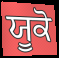
ਯੂਕੋ